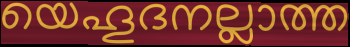
യെഹൂദനല്ലാത്ത